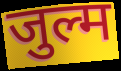
जुल्म